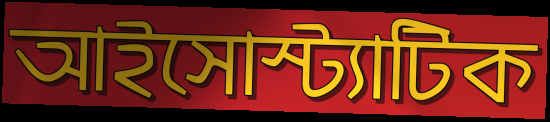
আইসোস্ট্যাটিক